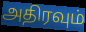
அதிரவும்